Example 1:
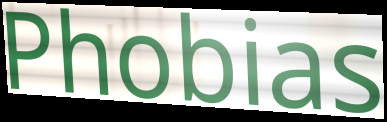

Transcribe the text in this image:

Phobias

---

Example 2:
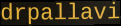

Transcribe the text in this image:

drpallavi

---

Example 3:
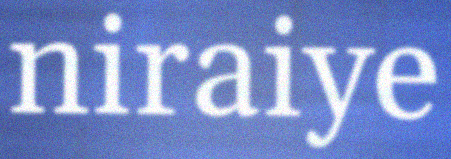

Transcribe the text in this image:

niraiye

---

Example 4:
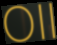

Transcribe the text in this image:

Oll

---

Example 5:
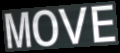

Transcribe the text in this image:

MOVE